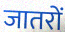
जातरों